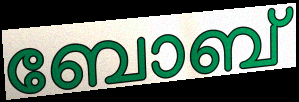
ബോബ്